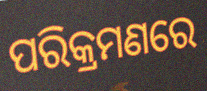
ପରିକ୍ରମଣରେ